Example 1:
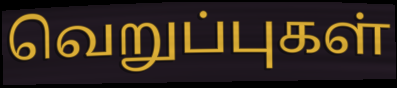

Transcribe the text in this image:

வெறுப்புகள்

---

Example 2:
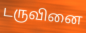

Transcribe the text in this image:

டருவினை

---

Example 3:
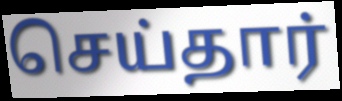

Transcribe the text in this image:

செய்தார்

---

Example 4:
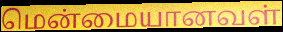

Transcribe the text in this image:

மென்மையானவள்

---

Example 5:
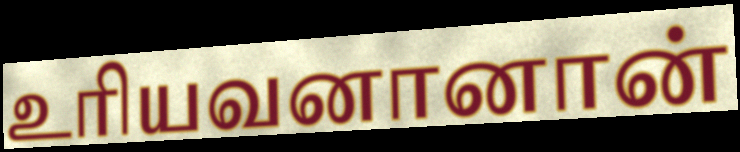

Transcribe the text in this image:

உரியவனானான்